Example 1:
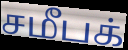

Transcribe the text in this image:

சமீபக்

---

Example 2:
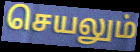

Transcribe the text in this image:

செயலும்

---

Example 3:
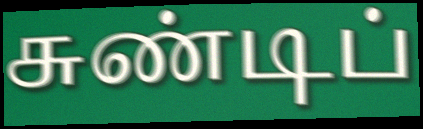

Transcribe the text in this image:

சுண்டிப்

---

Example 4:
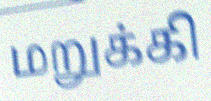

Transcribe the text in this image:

மறுக்கி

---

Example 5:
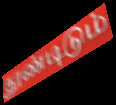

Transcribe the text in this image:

தூண்டிடும்